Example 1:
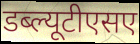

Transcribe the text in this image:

डब्ल्यूटीएसए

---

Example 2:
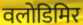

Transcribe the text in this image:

वलोडिमिर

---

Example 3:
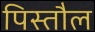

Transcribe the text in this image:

पिस्तौल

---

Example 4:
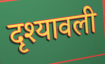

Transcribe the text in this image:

दृश्यावली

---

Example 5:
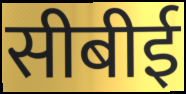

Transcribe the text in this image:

सीबीई